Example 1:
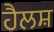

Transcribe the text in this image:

ਹੈਲਸ਼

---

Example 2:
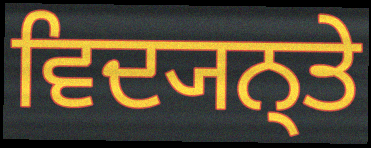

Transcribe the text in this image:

ਵਿਦ੍ਯਨ੍ਤੇ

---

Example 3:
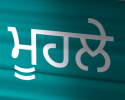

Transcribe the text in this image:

ਮੂਹਲੇ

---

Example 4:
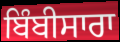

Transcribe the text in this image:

ਬਿੰਬੀਸਾਰਾ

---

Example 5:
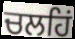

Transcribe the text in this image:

ਚਲਹਿਂ